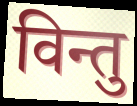
विन्तु